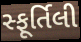
સ્ફૂર્તિલી